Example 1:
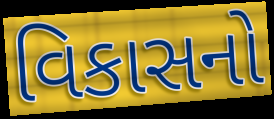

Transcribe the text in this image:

વિકાસનો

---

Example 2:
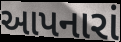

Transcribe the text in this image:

આપનારાં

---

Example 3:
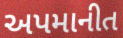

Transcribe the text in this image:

અપમાનીત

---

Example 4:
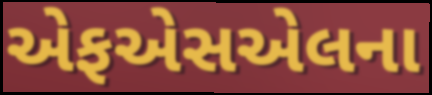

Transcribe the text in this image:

એફએસએલના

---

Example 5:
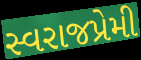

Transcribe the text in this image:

સ્વરાજપ્રેમી